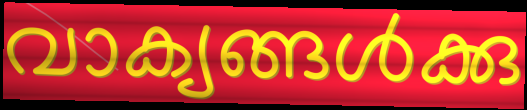
വാക്യങ്ങൾക്കു